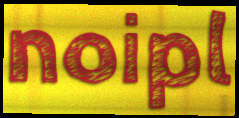
noipl